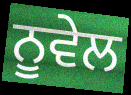
ਨੂਵੇਲ